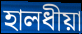
হালধীয়া